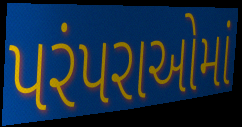
પરંપરાઓમાં